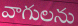
వాగులను